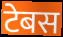
टेबस